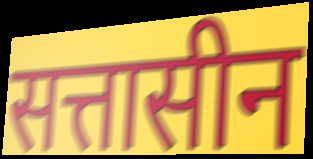
सत्तासीन